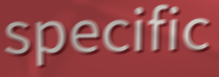
specific